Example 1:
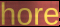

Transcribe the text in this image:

hore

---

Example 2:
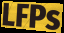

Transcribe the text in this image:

LFPs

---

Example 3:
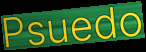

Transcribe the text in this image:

Psuedo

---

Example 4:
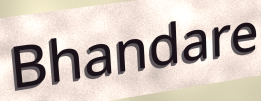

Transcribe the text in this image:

Bhandare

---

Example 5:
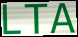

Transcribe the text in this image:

LTA